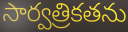
సార్వత్రికతను